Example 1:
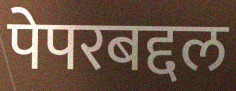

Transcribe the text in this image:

पेपरबद्दल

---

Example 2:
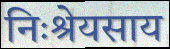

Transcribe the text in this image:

निःश्रेयसाय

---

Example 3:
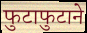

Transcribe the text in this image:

फुटाफुटाने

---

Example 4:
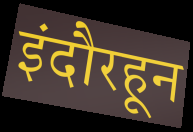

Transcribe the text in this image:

इंदौरहून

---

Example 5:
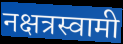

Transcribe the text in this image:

नक्षत्रस्वामी